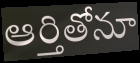
ఆర్తితోనూ